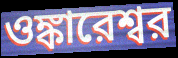
ওঙ্কারেশ্বর